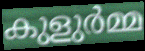
കുളുർമ്മ